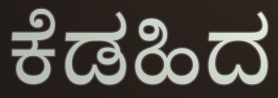
ಕೆಡಹಿದ